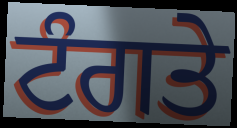
ਟੰਗਤੇ